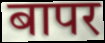
बापर